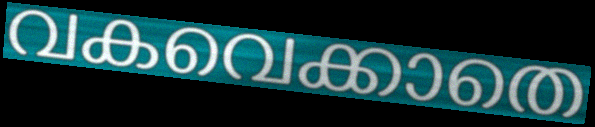
വകവെക്കാതെ